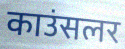
काउंसलर